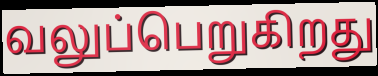
வலுப்பெறுகிறது